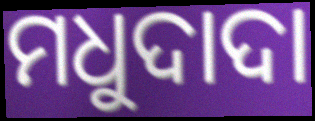
ମଧୁଦାଦା